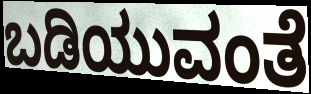
ಬಡಿಯುವಂತೆ